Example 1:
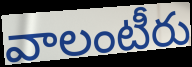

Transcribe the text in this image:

వాలంటీరు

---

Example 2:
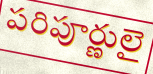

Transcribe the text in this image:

పరిపూర్ణులై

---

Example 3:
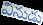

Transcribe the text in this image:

వినుడు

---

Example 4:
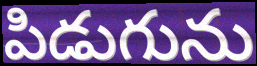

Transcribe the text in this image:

పిడుగును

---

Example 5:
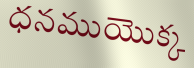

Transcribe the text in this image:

ధనముయొక్క